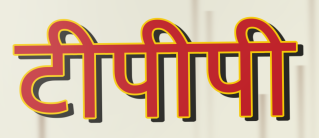
टीपीपी